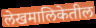
लेखमालिकेतील